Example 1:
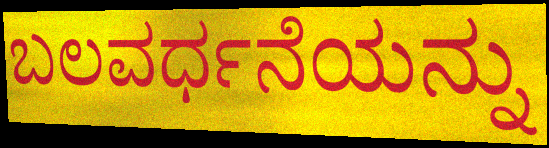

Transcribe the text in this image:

ಬಲವರ್ಧನೆಯನ್ನು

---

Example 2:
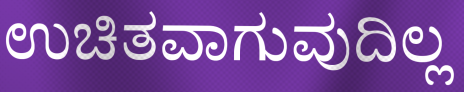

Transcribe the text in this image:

ಉಚಿತವಾಗುವುದಿಲ್ಲ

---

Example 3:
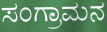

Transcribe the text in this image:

ಸಂಗ್ರಾಮನ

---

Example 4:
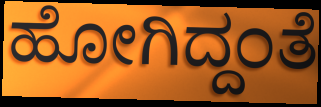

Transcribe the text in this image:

ಹೋಗಿದ್ದಂತೆ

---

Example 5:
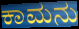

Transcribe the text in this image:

ಕಾಮನು